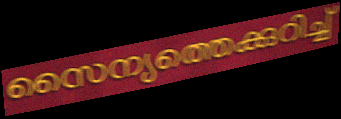
സൈന്യത്തെക്കുറിച്ച്